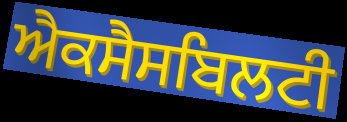
ਐਕਸੈਸਬਿਲਟੀ